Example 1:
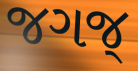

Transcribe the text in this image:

જગજ્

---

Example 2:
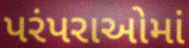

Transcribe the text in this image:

પરંપરાઓમાં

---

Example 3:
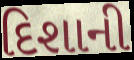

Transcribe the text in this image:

દિશાની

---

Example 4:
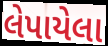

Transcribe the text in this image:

લેપાયેલા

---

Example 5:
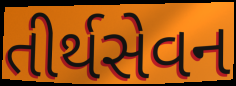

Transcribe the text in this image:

તીર્થસેવન